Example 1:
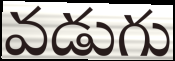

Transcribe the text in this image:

వడుగు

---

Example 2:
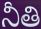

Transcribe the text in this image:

నీతి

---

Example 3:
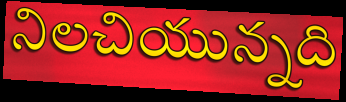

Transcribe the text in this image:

నిలచియున్నది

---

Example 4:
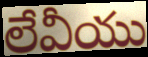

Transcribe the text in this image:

లేవీయు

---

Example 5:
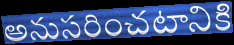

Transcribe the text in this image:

అనుసరించటానికి